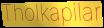
Tholkapilar